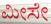
ಮೀಸೇ